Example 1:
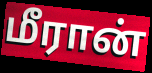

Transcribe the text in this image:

மீரான்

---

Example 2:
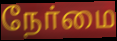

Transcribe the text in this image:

நேர்மை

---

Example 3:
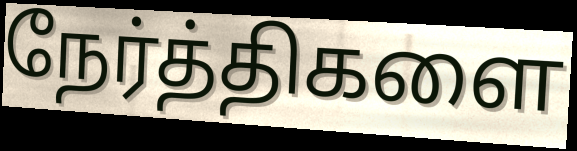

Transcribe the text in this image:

நேர்த்திகளை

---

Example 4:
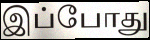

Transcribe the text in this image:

இப்போது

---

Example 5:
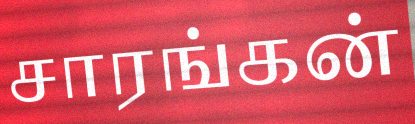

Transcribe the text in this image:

சாரங்கன்